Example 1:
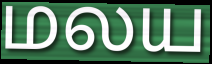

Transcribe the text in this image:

மலய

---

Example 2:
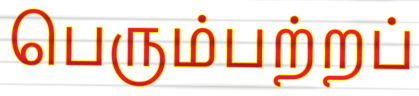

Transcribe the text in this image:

பெரும்பற்றப்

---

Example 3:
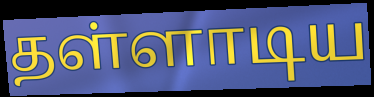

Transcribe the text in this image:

தள்ளாடிய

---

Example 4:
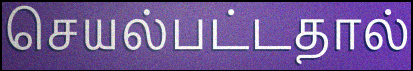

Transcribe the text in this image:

செயல்பட்டதால்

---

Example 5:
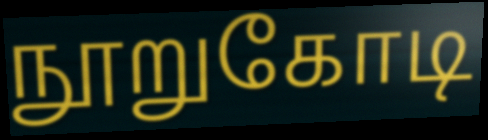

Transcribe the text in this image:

நூறுகோடி